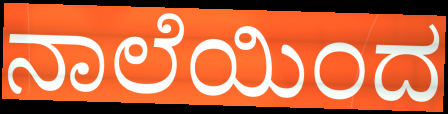
ನಾಲೆಯಿಂದ